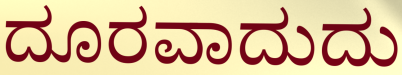
ದೂರವಾದುದು